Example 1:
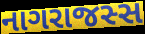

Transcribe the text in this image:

નાગરાજસ્સ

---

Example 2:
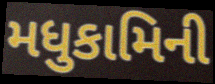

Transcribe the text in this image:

મધુકામિની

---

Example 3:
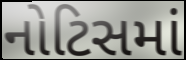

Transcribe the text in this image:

નોટિસમાં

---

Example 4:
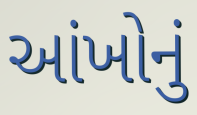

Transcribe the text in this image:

આંખોનું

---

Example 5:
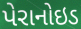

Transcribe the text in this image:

પેરાનોઇડ